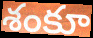
శంకూ